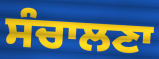
ਸੰਚਾਲਣਾ